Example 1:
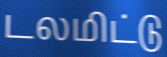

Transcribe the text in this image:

டலமிட்டு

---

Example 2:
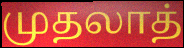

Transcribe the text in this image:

முதலாத்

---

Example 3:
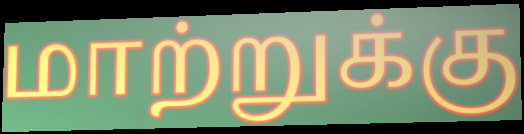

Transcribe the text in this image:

மாற்றுக்கு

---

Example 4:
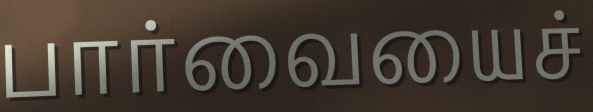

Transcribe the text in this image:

பார்வையைச்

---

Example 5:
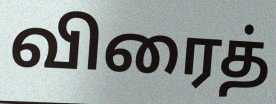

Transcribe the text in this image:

விரைத்